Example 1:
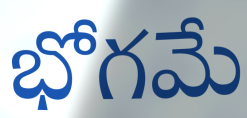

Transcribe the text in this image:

భోగమే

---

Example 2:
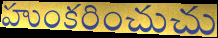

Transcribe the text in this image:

హుంకరించుచు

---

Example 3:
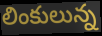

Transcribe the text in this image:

లింకులున్న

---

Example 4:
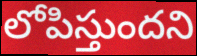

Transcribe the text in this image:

లోపిస్తుందని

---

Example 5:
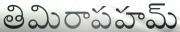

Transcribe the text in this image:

తిమిరాపహమ్